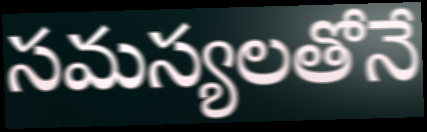
సమస్యలతోనే